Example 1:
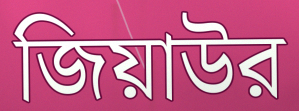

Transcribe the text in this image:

জিয়াউর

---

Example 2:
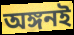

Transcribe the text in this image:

অঙ্গনই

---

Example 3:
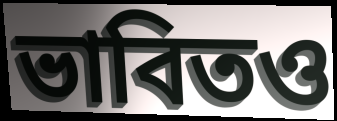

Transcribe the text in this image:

ভাবিতও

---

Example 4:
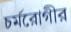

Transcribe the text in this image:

চর্মরোগীর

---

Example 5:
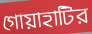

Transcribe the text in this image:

গোয়াহাটির